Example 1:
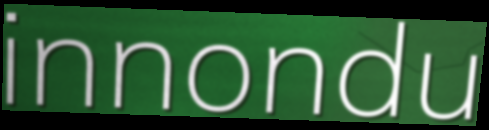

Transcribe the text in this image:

innondu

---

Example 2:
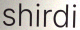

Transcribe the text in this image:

shirdi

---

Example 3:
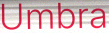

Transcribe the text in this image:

Umbra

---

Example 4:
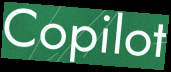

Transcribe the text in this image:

Copilot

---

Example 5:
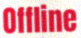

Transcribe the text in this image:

Offline